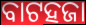
ବାଟହଜା